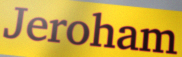
Jeroham